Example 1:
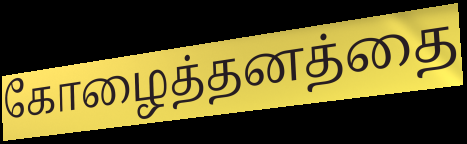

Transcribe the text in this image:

கோழைத்தனத்தை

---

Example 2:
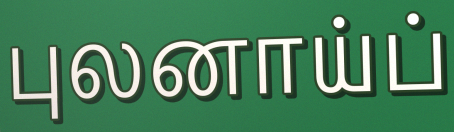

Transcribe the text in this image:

புலனாய்ப்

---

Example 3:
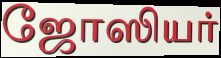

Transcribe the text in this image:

ஜோஸியர்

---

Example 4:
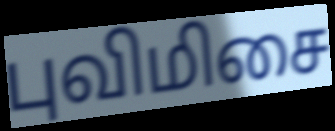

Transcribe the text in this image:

புவிமிசை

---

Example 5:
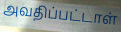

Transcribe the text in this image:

அவதிப்பட்டாள்